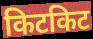
किटकिट